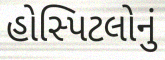
હોસ્પિટલોનું